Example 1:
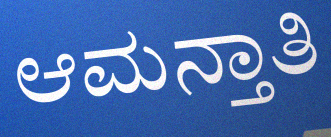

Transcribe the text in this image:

ಆಮನ್ತಾತಿ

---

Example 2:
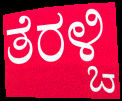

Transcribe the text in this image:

ತೆರಳ್ಚಿ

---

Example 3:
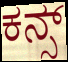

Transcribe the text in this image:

ಕನ್ಸ್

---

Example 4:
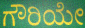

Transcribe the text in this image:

ಗೌರಿಯೇ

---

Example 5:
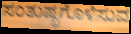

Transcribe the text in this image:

ಸಂತುಷ್ಟಗೊಳಿಸುವ